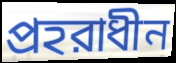
প্রহরাধীন